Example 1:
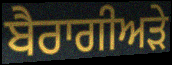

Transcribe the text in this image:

ਬੈਰਾਗੀਅੜੇ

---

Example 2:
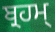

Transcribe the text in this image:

ਬ੍ਰਹਮ੍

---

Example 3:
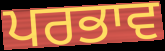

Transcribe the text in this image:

ਪਰਭਾਵ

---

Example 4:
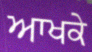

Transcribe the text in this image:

ਆਖਕੇ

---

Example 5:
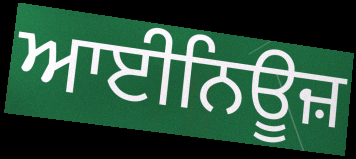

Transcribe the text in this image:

ਆਈਨਿਊਜ਼